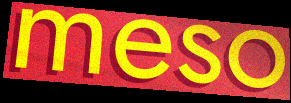
meso